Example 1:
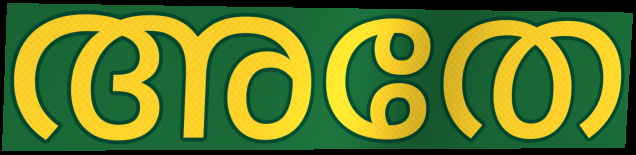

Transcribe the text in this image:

അതേ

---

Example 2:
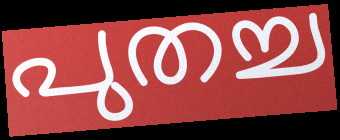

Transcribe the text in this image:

പുതച്ച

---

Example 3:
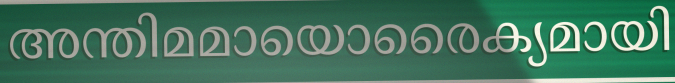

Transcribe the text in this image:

അന്തിമമായൊരൈക്യമായി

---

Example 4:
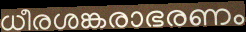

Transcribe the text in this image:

ധീരശങ്കരാഭരണം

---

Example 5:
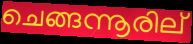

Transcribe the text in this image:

ചെങ്ങന്നൂരില്